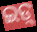
ଇଡ଼୍